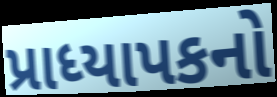
પ્રાધ્યાપકનો